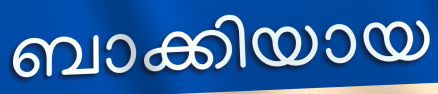
ബാക്കിയായ